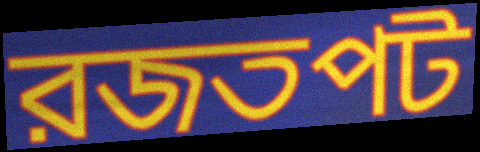
রজতপট